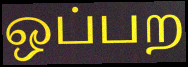
ஒப்பற